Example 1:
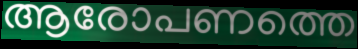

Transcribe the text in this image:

ആരോപണത്തെ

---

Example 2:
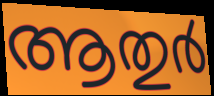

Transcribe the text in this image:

ആതുർ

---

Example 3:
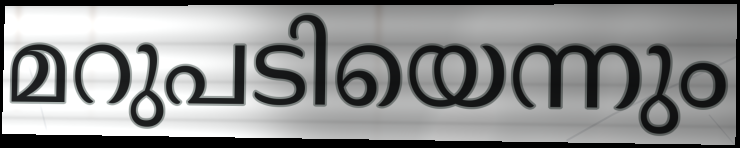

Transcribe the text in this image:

മറുപടിയെന്നും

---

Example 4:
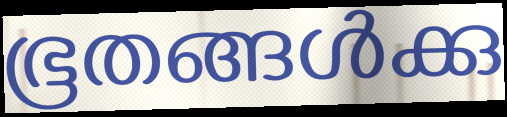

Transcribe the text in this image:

ഭൂതങ്ങൾക്കു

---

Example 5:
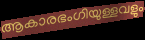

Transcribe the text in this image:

ആകാരഭംഗിയുള്ളവളും